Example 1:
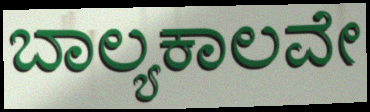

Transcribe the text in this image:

ಬಾಲ್ಯಕಾಲವೇ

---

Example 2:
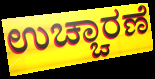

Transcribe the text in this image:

ಉಚ್ಚಾರಣೆ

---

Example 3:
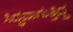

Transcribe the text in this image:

ಸಿದ್ಧವಾಗುತ್ತಿದ್ದ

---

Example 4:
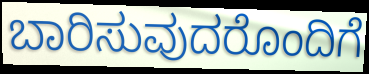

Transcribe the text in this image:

ಬಾರಿಸುವುದರೊಂದಿಗೆ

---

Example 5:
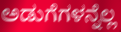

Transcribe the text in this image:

ಅಡುಗೆಗಳನ್ನೆಲ್ಲ